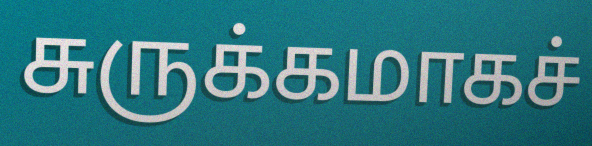
சுருக்கமாகச்